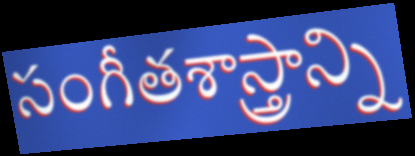
సంగీతశాస్త్రాన్ని